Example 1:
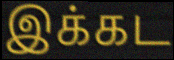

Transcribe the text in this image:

இக்கட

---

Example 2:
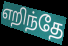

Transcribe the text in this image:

எறிந்தே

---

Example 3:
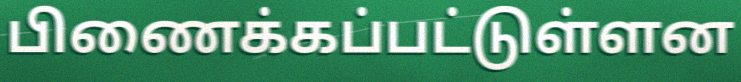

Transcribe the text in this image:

பிணைக்கப்பட்டுள்ளன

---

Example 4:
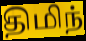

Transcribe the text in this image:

திமிந்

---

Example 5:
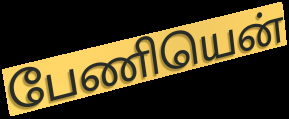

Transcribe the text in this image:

பேணியென்